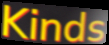
Kinds